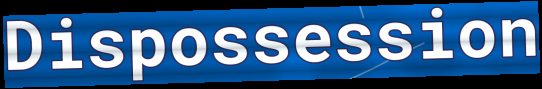
Dispossession